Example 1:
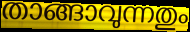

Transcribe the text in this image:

താങ്ങാവുന്നതും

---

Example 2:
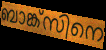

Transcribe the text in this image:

ബാങ്ക്സിനെ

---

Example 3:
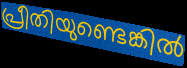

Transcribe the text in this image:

പ്രീതിയുണ്ടെങ്കിൽ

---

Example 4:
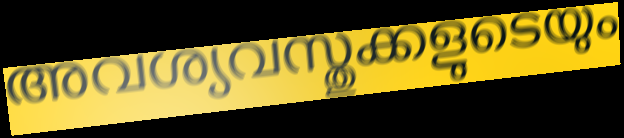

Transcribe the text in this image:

അവശ്യവസ്തുക്കളുടെയും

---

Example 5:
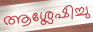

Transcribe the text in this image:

ആശ്ലേഷിച്ചു